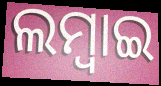
ଲମ୍ବାଇ